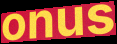
onus